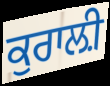
ਕੁਰਾਲ਼ੀ